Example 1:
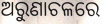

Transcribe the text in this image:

ଅରୁଣାଚଳରେ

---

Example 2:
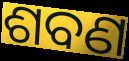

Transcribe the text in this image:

ଶବଣ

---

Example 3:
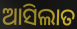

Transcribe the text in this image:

ଆସିଲାତ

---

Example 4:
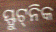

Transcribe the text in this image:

ସ୍ଫୁଟ୍‌ନିକ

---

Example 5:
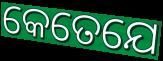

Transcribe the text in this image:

କେତେଯେ